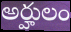
అర్హులం